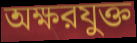
অক্ষরযুক্ত